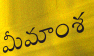
మీమాంశ